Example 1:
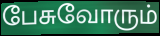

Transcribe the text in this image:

பேசுவோரும்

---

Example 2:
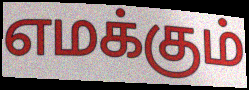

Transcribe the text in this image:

எமக்கும்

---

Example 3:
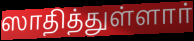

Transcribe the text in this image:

ஸாதித்துள்ளார்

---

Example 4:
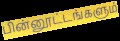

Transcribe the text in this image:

பின்னூட்டங்களும்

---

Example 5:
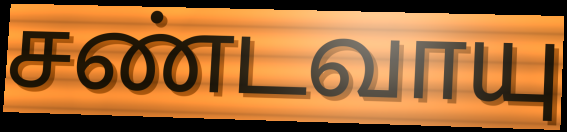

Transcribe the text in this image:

சண்டவாயு